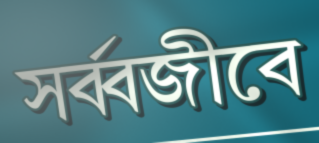
সর্ব্বজীবে